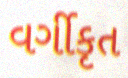
વર્ગીકૃત